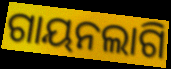
ଗାୟନଲାଗି